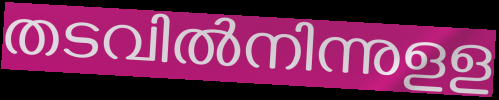
തടവിൽനിന്നുളള